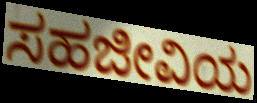
ಸಹಜೀವಿಯ